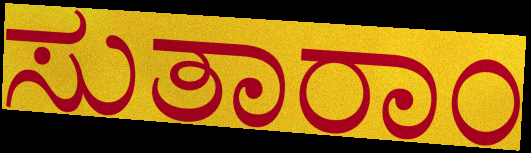
ಸುತಾರಾಂ